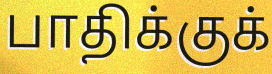
பாதிக்குக்